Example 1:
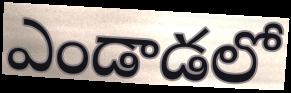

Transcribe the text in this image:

ఎండాడలో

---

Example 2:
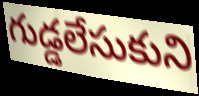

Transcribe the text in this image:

గుడ్డలేసుకుని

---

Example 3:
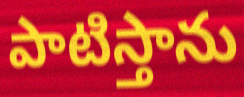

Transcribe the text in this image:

పాటిస్తాను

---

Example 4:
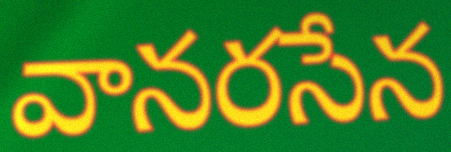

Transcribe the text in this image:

వానరసేన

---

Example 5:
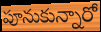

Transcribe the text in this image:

పూనుకున్నారో